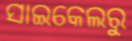
ସାଇକେଲରୁ